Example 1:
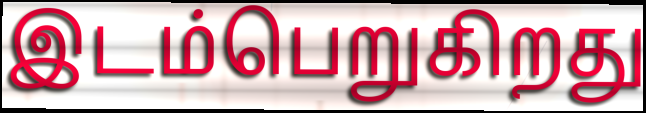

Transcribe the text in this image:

இடம்பெறுகிறது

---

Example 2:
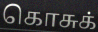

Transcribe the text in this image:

கொசுக்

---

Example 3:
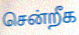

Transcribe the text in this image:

சென்றீக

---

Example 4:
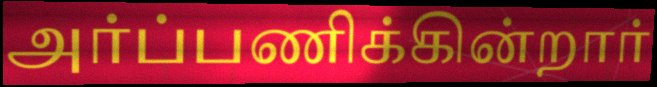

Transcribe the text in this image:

அர்ப்பணிக்கின்றார்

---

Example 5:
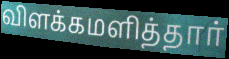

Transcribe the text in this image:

விளக்கமளித்தார்